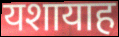
यशायाह